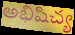
అభిషిచ్య